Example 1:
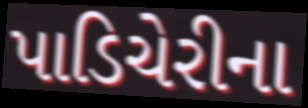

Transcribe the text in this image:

પાડિચેરીના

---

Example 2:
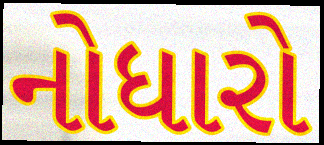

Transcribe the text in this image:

નોધારો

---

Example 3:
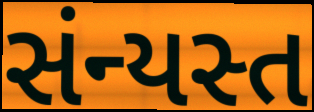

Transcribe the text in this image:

સંન્યસ્ત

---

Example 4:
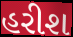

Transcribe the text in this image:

હરીશ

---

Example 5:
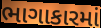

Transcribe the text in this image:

ભાગાકારમાં